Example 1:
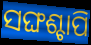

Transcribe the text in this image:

ସଙ୍ଘଶ୍ଚାପି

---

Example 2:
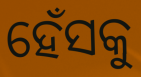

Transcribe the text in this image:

ହେଁସକୁ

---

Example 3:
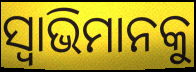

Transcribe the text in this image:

ସ୍ୱାଭିମାନକୁ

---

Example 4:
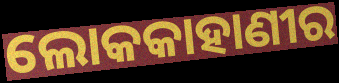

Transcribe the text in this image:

ଲୋକକାହାଣୀର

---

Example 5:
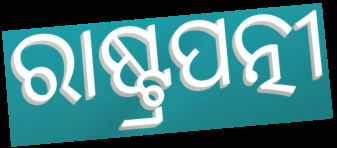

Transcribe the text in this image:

ରାଷ୍ଟ୍ରପତ୍ନୀ